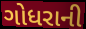
ગોધરાની